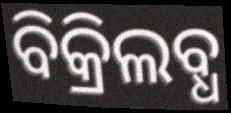
ବିକ୍ରିଲବ୍ଧ